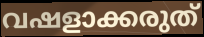
വഷളാക്കരുത്